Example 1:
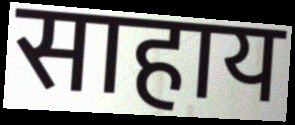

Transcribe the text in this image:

साहाय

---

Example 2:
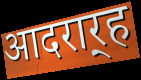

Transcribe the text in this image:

आदरार्ह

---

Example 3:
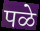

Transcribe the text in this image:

पळे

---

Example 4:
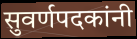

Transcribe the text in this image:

सुवर्णपदकांनी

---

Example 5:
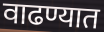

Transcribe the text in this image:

वाढण्यात